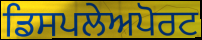
ਡਿਸਪਲੇਅਪੋਰਟ